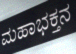
ಮಹಾಭಕ್ತನ